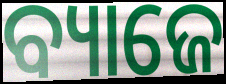
ବ୍ୟାଜେ